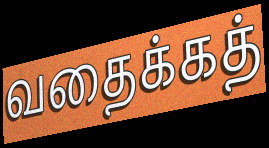
வதைக்கத்